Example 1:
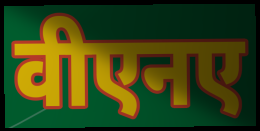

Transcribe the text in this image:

वीएनए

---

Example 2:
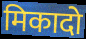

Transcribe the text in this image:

मिकादो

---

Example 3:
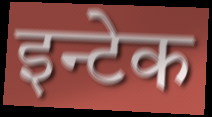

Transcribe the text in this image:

इन्टेक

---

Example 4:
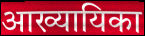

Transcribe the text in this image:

आख्यायिका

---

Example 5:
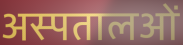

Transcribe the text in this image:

अस्पतालओं